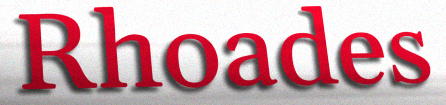
Rhoades